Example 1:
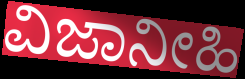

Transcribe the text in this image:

ವಿಜಾನೀಹಿ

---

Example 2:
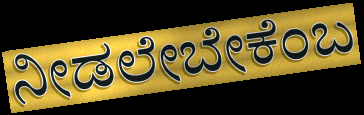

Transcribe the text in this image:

ನೀಡಲೇಬೇಕೆಂಬ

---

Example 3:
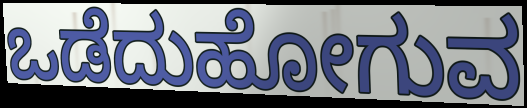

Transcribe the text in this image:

ಒಡೆದುಹೋಗುವ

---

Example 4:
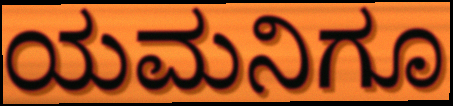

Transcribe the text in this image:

ಯಮನಿಗೂ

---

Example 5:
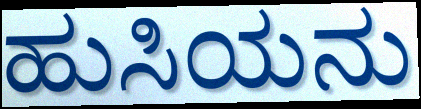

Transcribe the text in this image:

ಹುಸಿಯನು